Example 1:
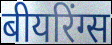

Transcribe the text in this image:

बीयरिंग्स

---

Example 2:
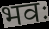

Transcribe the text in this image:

भवः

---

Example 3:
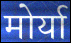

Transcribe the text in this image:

मोर्या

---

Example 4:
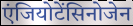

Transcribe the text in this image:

एंजियोटेंसिनोजेन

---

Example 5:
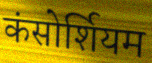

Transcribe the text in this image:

कंसोर्शियम